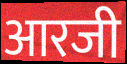
आरजी